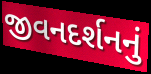
જીવનદર્શનનું